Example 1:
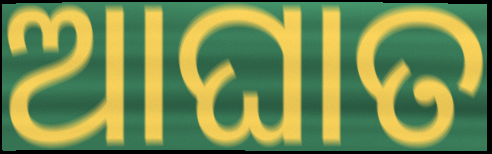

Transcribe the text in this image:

ଆଘାତ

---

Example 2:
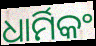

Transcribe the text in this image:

ଧାର୍ମିକଂ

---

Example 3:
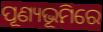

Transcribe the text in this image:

ପୂଣ୍ୟଭୂମିରେ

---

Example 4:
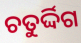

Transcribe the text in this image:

ଚତୁର୍ଦ୍ଦିଗ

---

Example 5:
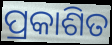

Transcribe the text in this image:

ପ୍ରକାଶିତ